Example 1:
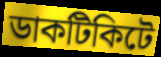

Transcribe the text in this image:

ডাকটিকিটে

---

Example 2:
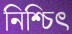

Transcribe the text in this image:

নিশ্চিৎ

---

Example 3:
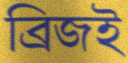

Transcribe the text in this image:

ব্রিজই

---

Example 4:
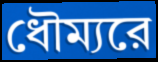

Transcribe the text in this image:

ধৌম্যরে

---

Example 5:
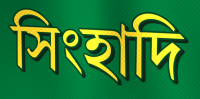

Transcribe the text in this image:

সিংহাদি